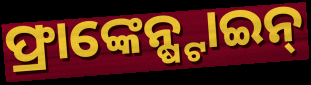
ଫ୍ରାଙ୍କେନ୍ଷ୍ଟାଇନ୍